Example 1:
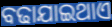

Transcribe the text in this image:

ବଢାଯାଇଥାଏ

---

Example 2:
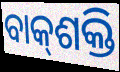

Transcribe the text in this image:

ବାକ୍‌ଶକ୍ତି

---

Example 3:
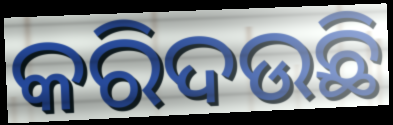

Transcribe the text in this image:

କରିଦଉଛି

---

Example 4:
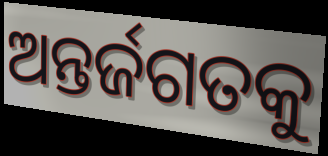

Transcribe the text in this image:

ଅନ୍ତର୍ଜଗତକୁ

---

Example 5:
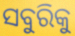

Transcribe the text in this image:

ସବୁରିକୁ